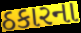
ઠકારના